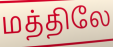
மத்திலே